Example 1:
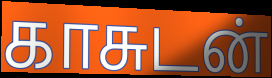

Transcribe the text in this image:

காசுடன்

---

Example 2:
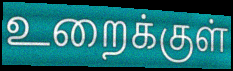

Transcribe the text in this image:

உறைக்குள்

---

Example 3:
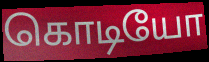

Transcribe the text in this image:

கொடியோ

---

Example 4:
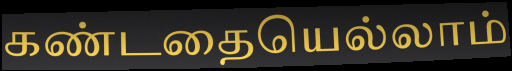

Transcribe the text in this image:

கண்டதையெல்லாம்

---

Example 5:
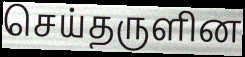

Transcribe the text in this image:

செய்தருளின